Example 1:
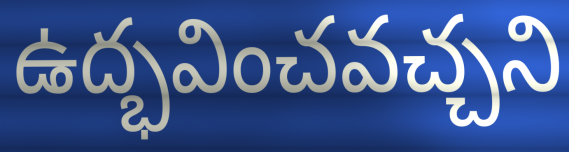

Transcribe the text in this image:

ఉద్భవించవచ్చని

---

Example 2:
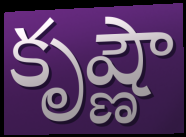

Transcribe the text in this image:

కృష్ణౌ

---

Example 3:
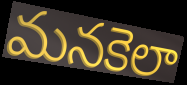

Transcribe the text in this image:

మనకెలా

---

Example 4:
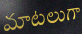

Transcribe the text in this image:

మాటలుగా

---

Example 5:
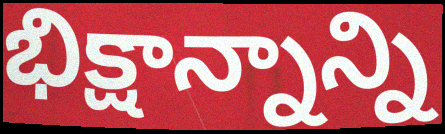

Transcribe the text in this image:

భిక్షాన్నాన్ని